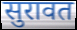
सुरावत